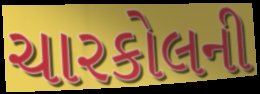
ચારકોલની